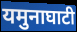
यमुनाघाटी